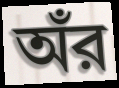
অঁর